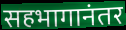
सहभागानंतर